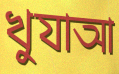
খুযাআ